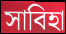
সাবিহা